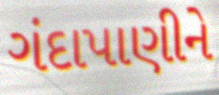
ગંદાપાણીને